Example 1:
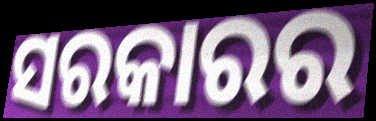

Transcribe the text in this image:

ସରକାରର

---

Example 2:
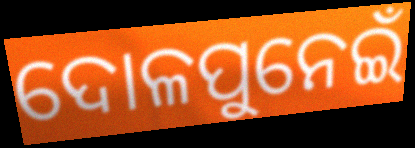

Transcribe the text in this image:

ଦୋଳପୁନେଇଁ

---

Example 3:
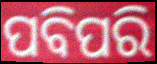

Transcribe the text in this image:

ପବିପରି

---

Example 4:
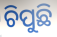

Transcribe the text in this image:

ଚିପୁଛି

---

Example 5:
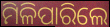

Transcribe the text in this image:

ମିଳିପାରିଲେ